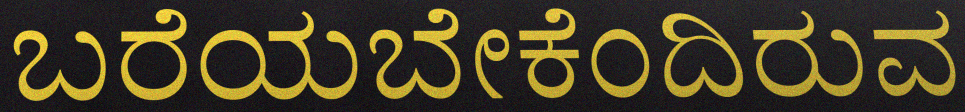
ಬರೆಯಬೇಕೆಂದಿರುವ